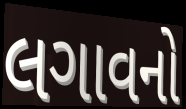
લગાવનો